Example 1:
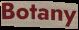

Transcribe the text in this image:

Botany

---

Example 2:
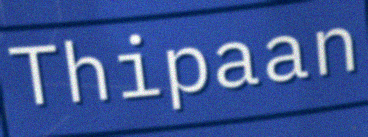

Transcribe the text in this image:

Thipaan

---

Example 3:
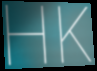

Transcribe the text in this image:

HK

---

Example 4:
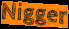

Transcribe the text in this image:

Nigger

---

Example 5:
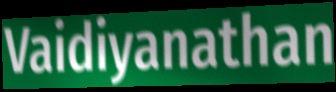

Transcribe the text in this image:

Vaidiyanathan